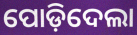
ପୋଡ଼ିଦେଲା